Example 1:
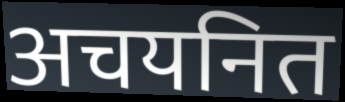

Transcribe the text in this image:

अचयनित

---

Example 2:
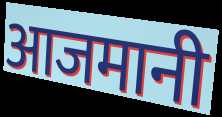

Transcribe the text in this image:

आजमानी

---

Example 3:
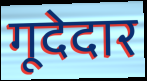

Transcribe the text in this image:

गूदेदार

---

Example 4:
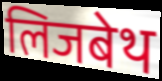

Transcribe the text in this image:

लिजबेथ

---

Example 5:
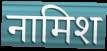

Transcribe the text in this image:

नामिश